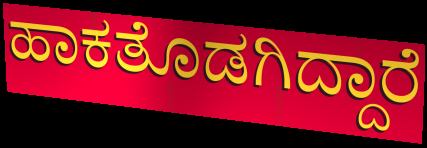
ಹಾಕತೊಡಗಿದ್ದಾರೆ